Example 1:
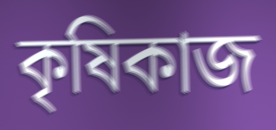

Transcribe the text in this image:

কৃষিকাজ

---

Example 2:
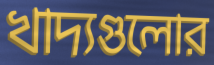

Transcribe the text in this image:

খাদ্যগুলোর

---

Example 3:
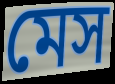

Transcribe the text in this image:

মেস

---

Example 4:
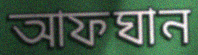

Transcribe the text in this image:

আফঘান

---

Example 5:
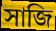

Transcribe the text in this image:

সাজি